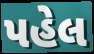
પહેલ